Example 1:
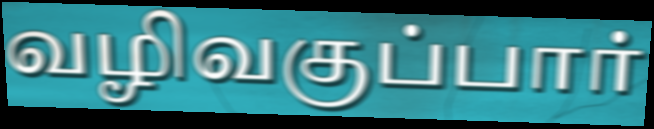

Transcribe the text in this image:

வழிவகுப்பார்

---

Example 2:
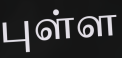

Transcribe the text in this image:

புள்ள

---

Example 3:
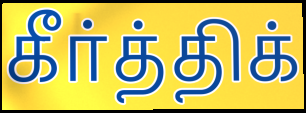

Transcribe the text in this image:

கீர்த்திக்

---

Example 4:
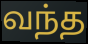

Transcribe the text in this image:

வந்த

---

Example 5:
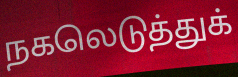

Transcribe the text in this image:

நகலெடுத்துக்